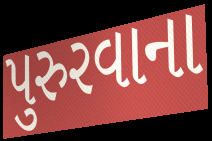
પુરુરવાના